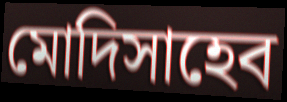
মোদিসাহেব